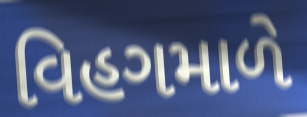
વિહગમાળે